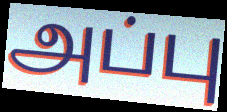
அப்பு